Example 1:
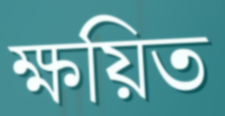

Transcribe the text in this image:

ক্ষয়িত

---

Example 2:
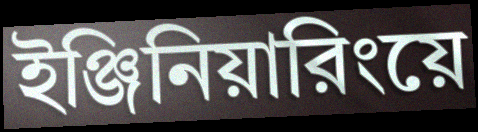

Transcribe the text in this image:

ইঞ্জিনিয়ারিংয়ে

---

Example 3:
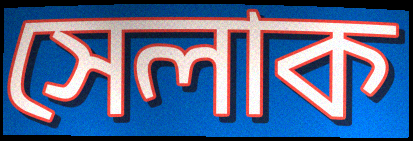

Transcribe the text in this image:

সেলাক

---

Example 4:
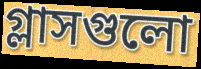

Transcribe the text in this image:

গ্লাসগুলো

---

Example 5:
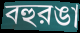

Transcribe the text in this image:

বহুরঙা